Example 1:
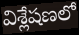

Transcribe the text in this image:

విశ్లేషణలో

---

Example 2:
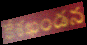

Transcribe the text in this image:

కేశఖండన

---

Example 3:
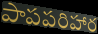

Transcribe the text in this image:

పాపపరిహార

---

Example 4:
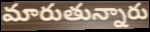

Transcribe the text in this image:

మారుతున్నారు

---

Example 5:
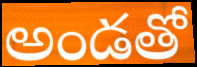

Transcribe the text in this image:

అండతో